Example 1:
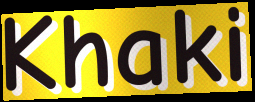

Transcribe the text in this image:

Khaki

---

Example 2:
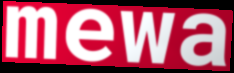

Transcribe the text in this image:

mewa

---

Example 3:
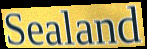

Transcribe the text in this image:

Sealand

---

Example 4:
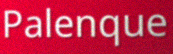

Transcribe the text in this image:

Palenque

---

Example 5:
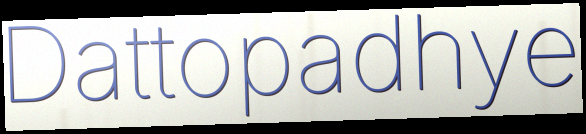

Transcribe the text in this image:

Dattopadhye